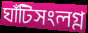
ঘাঁটিসংলগ্ন